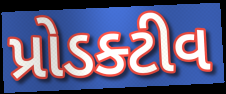
પ્રોડક્ટીવ